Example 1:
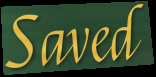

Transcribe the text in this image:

Saved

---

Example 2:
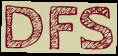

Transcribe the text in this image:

DFS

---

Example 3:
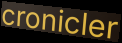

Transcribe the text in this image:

cronicler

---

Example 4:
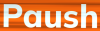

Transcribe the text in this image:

Paush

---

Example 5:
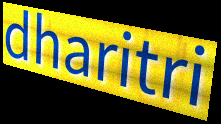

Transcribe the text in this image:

dharitri